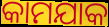
କାମଯାକ